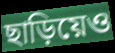
ছাড়িয়েও